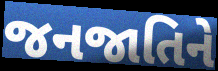
જનજાતિને